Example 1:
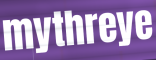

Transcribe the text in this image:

mythreye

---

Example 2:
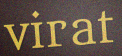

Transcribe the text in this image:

virat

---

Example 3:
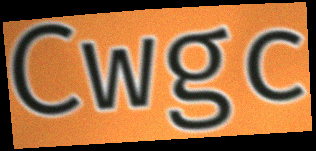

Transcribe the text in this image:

Cwgc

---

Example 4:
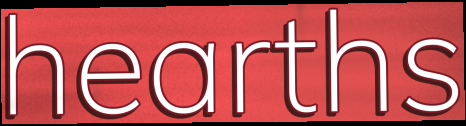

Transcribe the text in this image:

hearths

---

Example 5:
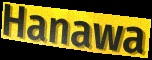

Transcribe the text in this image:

Hanawa